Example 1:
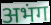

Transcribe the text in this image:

अभंग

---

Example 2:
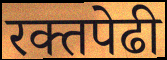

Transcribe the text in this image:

रक्तपेढी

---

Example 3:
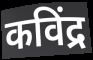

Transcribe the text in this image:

कविंद्र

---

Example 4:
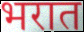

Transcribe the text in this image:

भरात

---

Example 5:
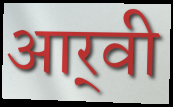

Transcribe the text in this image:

आर्वी